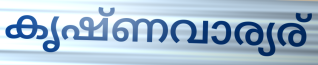
കൃഷ്ണവാര്യര്